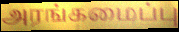
அரங்கமைப்பு